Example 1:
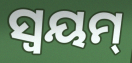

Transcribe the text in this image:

ସ୍ୱୟମ୍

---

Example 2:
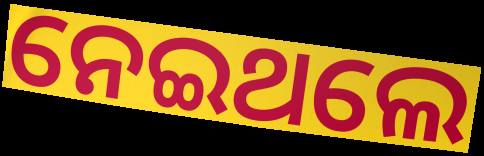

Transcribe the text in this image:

ନେଇଥଲେ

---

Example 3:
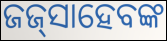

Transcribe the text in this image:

ଜଜ୍‍ସାହେବଙ୍କ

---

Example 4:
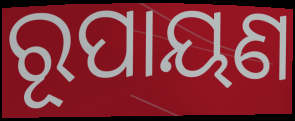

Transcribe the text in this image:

ରୂପାୟଣ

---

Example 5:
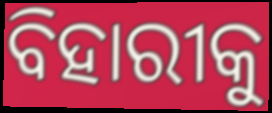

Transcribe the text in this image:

ବିହାରୀକୁ